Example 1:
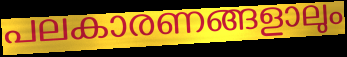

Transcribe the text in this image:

പലകാരണങ്ങളാലും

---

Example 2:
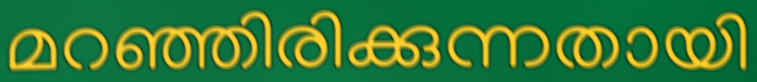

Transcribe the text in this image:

മറഞ്ഞിരിക്കുന്നതായി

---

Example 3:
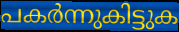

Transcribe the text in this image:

പകർന്നുകിട്ടുക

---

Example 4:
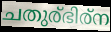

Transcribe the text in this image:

ചതുര്ഭിര്ന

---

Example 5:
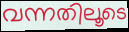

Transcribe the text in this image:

വന്നതിലൂടെ